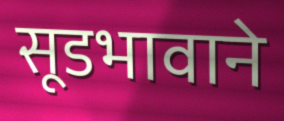
सूडभावाने